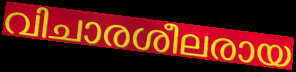
വിചാരശീലരായ